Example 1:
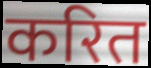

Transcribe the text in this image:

करित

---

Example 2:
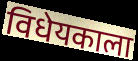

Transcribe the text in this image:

विधेयकाला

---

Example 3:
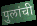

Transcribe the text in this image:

पुलांची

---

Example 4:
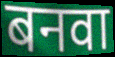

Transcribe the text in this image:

बनवा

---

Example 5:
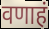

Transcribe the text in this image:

वणाहं